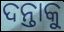
ଦନ୍ତାକୁ